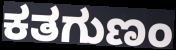
ಕತಗುಣಂ